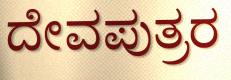
ದೇವಪುತ್ರರ